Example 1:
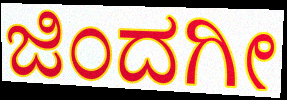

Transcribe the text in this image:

ಜಿಂದಗೀ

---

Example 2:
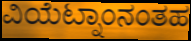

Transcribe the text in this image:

ವಿಯೆಟ್ನಾಂನಂತಹ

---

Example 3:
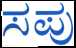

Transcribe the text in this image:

ಸಪು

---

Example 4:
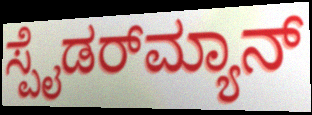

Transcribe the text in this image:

ಸ್ಪೈಡರ್‌ಮ್ಯಾನ್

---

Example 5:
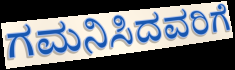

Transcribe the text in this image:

ಗಮನಿಸಿದವರಿಗೆ